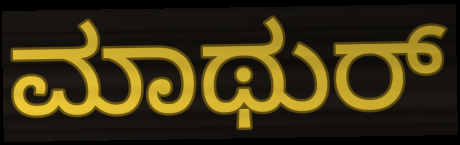
ಮಾಥುರ್